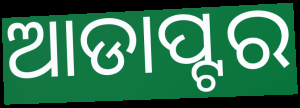
ଆଡାପ୍ଟର